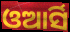
ଓଆର୍ସି